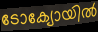
ടോക്യോയിൽ